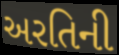
અરતિની